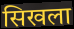
सिखला